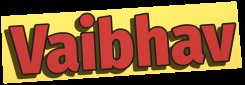
Vaibhav